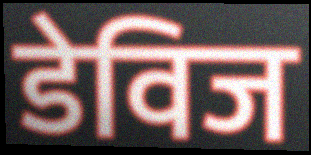
डेविज